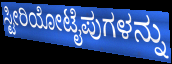
ಸ್ಟೀರಿಯೋಟೈಪುಗಳನ್ನು